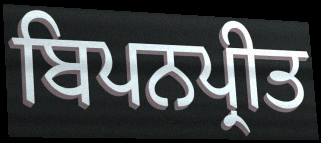
ਬਿਪਨਪ੍ਰੀਤ